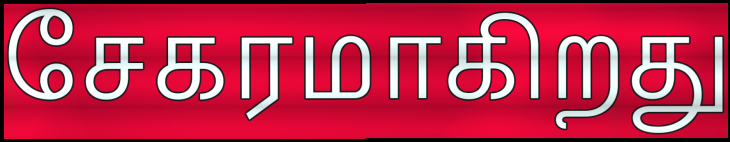
சேகரமாகிறது